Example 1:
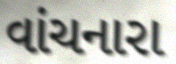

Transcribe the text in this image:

વાંચનારા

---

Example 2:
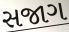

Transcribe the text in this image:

સજાગ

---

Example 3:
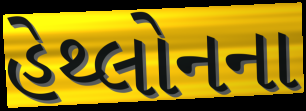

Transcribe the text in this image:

હેથ્લોનના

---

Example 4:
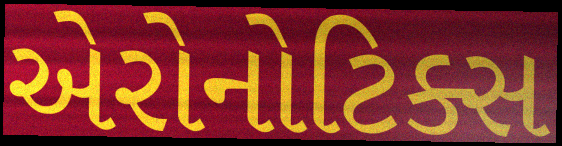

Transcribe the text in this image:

એરોનોટિક્સ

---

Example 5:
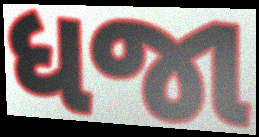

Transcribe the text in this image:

ધજા